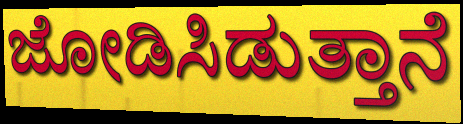
ಜೋಡಿಸಿಡುತ್ತಾನೆ